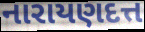
નારાયણદત્ત